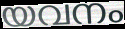
യവനം